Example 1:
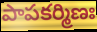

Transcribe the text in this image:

పాపకర్మిణః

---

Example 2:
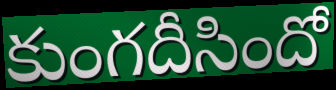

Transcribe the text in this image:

కుంగదీసిందో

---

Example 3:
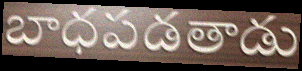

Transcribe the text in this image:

బాధపడతాడు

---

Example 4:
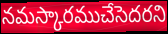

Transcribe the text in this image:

నమస్కారముచేసెదరని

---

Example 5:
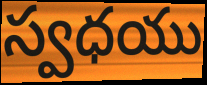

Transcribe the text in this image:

స్వధయు